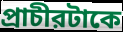
প্রাচীরটাকে